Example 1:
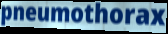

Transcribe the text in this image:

pneumothorax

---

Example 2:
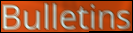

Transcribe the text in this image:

Bulletins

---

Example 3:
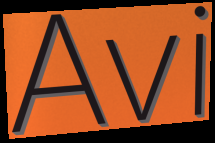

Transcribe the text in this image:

Avi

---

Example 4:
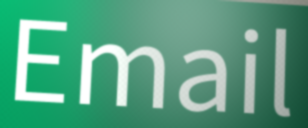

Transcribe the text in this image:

Email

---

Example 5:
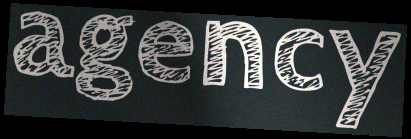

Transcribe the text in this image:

agency